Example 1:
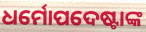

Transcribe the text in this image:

ଧର୍ମୋପଦେଷ୍ଟାଙ୍କ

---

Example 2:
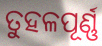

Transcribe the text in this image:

ତୁହଳପୂର୍ଣ୍ଣ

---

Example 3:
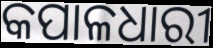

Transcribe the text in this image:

କପାଳଧାରୀ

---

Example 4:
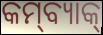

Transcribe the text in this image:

କମ୍‌ବ୍ୟାକ୍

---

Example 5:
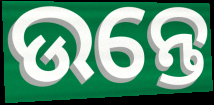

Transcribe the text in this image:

ଉନ୍ତେ